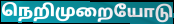
நெறிமுறையோடு